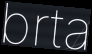
brta